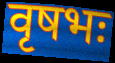
वृषभः